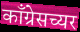
काँग्रेसच्यर